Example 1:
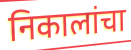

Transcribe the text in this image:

निकालांचा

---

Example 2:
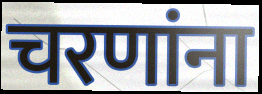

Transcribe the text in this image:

चरणांना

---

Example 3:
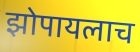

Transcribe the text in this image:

झोपायलाच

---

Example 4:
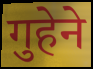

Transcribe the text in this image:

गुहेने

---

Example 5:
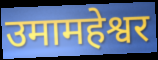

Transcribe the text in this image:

उमामहेश्वर